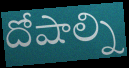
దోషాల్ని